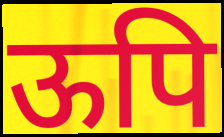
ऊपि